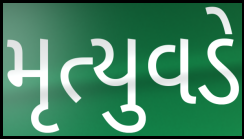
મૃત્યુવડે